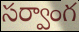
సర్వాంగ